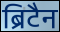
ब्रिटैन